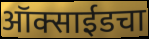
ऑक्साईडचा